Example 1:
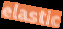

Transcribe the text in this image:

elastic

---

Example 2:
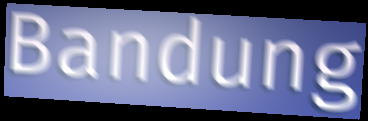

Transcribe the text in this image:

Bandung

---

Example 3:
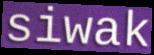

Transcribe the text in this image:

siwak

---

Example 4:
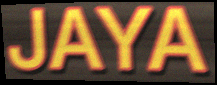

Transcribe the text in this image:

JAYA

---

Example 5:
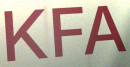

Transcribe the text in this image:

KFA